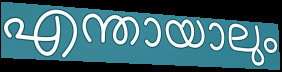
എന്തായാലും